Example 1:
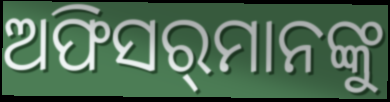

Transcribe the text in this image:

ଅଫିସର୍‌ମାନଙ୍କୁ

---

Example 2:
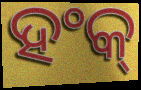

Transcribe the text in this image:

ହଂକ୍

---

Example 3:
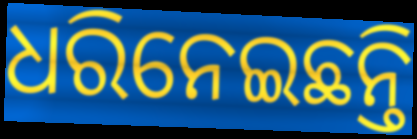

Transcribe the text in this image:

ଧରିନେଇଛନ୍ତି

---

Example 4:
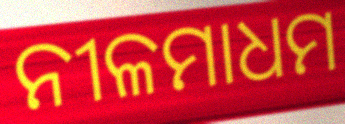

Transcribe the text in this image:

ନୀଳମାଧମ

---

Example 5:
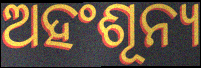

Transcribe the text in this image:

ଅହଂଶୂନ୍ୟ